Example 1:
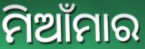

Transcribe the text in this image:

ମିଆଁମାର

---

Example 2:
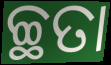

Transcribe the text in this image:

ଚ୍ଛତା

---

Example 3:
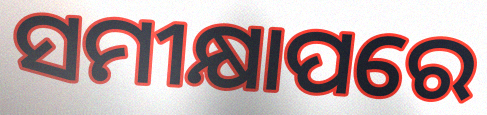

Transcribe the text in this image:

ସମୀକ୍ଷାପରେ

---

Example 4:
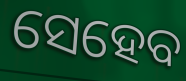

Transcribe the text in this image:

ସେହେବ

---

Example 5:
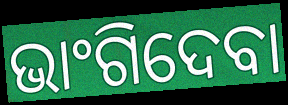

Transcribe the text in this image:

ଭାଂଗିଦେବା